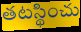
తటస్థించు